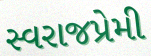
સ્વરાજપ્રેમી